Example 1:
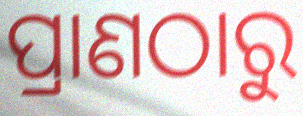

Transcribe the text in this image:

ପ୍ରାଣଠାରୁ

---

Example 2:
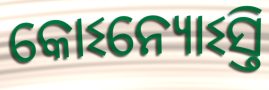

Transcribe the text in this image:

କୋଽନ୍ୟୋଽସ୍ତି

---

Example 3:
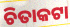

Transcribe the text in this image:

ଚିତାକଟା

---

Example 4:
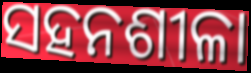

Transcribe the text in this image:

ସହନଶୀଳା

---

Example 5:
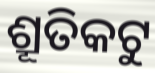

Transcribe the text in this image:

ଶ୍ରୂତିକଟୁ